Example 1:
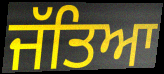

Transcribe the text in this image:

ਜੱਤਿਆ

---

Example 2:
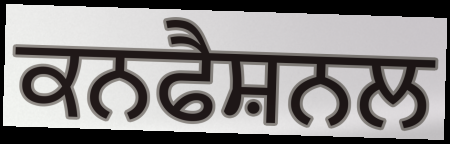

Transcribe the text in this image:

ਕਨਫੈਸ਼ਨਲ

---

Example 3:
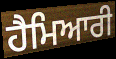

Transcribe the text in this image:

ਹੈਮਿਆਰੀ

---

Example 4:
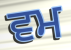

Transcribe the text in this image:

ਵਮ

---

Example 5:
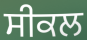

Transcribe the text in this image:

ਸੀਕਲ